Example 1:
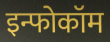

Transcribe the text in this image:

इन्फोकॉम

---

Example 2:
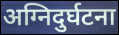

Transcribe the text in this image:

अग्निदुर्घटना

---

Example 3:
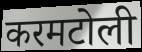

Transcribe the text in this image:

करमटोली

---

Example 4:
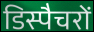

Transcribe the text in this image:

डिस्पैचरों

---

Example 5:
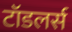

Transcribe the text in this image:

टॉडलर्स